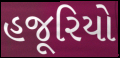
હજૂરિયો